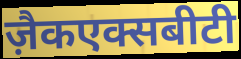
ज़ैकएक्सबीटी